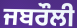
ਜਬਰੌਲੀ